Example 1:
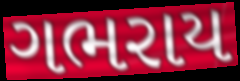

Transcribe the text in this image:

ગભરાય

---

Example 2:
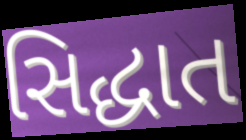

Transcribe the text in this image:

સિદ્ધાત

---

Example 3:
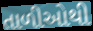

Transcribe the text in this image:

તાળીઓથી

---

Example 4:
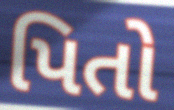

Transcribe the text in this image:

પિતો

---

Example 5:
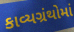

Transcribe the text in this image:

કાવ્યગ્રંથોમાં